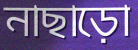
নাছাড়ো